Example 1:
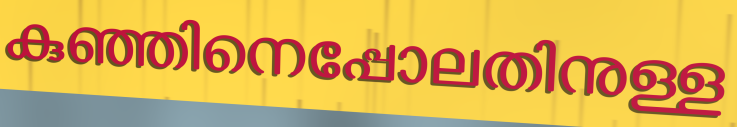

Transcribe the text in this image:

കുഞ്ഞിനെപ്പോലതിനുള്ള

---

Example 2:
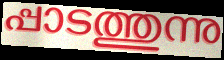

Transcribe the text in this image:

പ്പാടത്തുന്നു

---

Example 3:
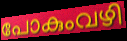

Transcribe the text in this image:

പോകുംവഴി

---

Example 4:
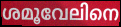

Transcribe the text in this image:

ശമൂവേലിനെ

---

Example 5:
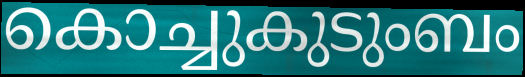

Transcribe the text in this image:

കൊച്ചുകുടുംബം